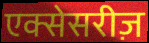
एक्सेसरीज़